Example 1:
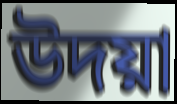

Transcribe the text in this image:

উদয়া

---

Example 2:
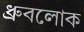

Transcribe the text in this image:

ধ্রুবলোক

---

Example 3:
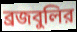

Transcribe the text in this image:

ব্রজবুলির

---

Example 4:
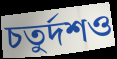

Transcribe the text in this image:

চতুর্দশও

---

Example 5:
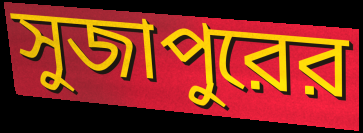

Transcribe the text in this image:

সুজাপুরের